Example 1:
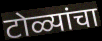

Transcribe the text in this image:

टोळ्यांचा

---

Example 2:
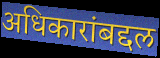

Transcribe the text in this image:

अधिकारांबद्दल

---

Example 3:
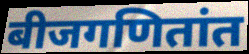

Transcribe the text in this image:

बीजगणितांत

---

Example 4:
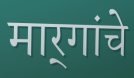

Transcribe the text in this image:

मार्गांचे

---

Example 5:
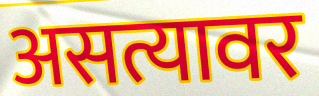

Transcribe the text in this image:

असत्यावर